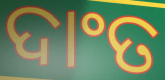
ଦାଂତ